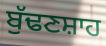
ਬੁੱਢਣਸ਼ਾਹ